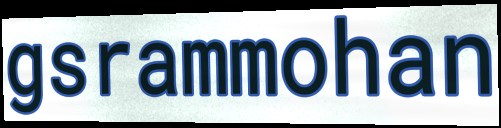
gsrammohan